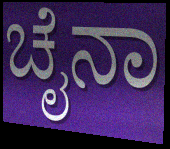
ಚೈನಾ